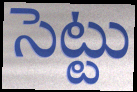
సెట్టు